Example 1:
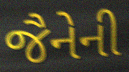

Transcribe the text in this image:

જૈનેની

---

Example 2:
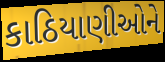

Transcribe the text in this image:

કાઠિયાણીઓને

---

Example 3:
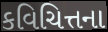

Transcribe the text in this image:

કવિચિત્તના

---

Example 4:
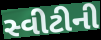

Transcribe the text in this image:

સ્વીટીની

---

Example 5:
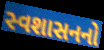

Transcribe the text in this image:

સ્વશાસનનો